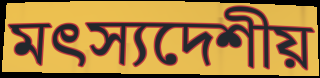
মৎস্যদেশীয়